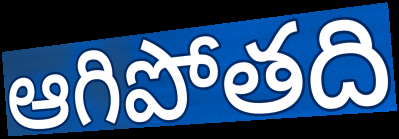
ఆగిపోతది